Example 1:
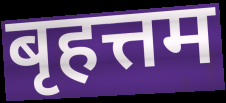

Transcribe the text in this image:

बृहत्तम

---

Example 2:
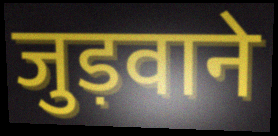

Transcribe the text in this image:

जुड़वाने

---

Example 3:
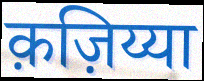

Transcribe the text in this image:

क़ज़िय्या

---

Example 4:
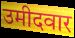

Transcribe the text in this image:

उमीदवार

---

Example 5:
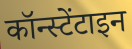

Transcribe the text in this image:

कॉन्स्टेंटाइन